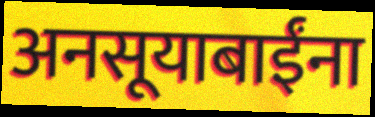
अनसूयाबाईंना